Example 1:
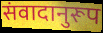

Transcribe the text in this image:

संवादानुरूप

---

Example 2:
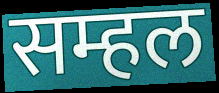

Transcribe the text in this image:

सम्हल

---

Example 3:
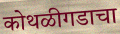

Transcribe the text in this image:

कोथळीगडाचा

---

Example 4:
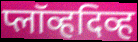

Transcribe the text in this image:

प्लॉव्हदिव्ह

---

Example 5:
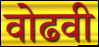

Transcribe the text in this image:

वोढवी